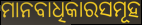
ମାନବାଧିକାରସମୂହ